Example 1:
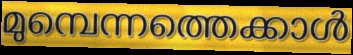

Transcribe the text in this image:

മുമ്പെന്നത്തെക്കാൾ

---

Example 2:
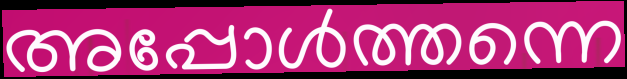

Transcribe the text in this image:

അപ്പോൾത്തന്നെ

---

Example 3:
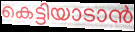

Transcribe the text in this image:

കെട്ടിയാടാൻ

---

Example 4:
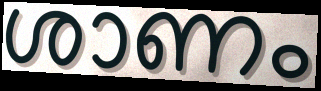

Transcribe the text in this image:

ശാണം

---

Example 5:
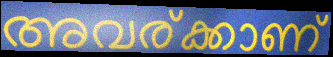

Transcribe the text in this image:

അവര്ക്കാണ്